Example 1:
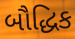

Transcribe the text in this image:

બૌદ્ધિક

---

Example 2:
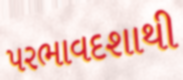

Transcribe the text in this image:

પરભાવદશાથી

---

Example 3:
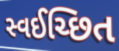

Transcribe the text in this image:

સ્વઈચ્છિત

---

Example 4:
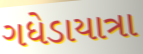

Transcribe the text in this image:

ગધેડાયાત્રા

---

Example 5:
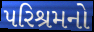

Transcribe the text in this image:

પરિશ્રમનો